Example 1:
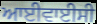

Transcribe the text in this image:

ਆਈਵਾਈਸੀ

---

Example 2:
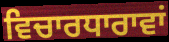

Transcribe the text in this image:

ਵਿਚਾਰਧਾਰਾਵਾਂ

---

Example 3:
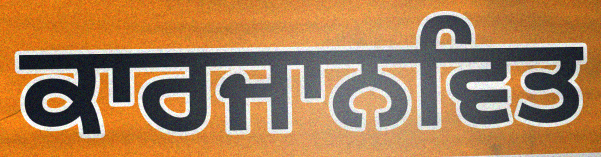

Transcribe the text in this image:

ਕਾਰਜਾਨਵਿਤ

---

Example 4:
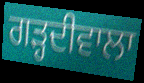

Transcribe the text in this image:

ਗਡ਼੍ਹਦੀਵਾਲਾ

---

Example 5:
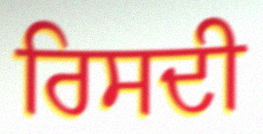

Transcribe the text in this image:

ਰਿਸਦੀ